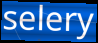
selery